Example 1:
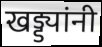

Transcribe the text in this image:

खड्ड्यांनी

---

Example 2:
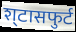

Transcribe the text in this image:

श्टासफुर्ट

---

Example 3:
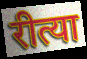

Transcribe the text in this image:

रीत्या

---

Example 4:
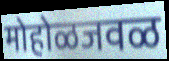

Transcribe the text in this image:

मोहोळजवळ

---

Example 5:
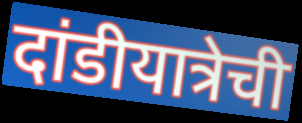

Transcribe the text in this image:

दांडीयात्रेची